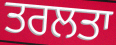
ਤਰਲਤਾ